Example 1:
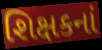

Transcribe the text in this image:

શિક્ષકનાં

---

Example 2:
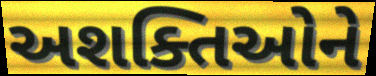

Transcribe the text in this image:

અશક્તિઓને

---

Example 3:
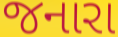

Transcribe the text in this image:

જનારા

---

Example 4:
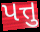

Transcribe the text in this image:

પત્તુ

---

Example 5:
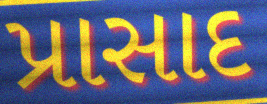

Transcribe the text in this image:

પ્રાસાદ